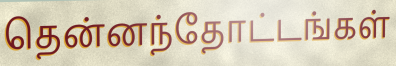
தென்னந்தோட்டங்கள்